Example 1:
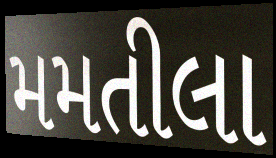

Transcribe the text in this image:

મમતીલા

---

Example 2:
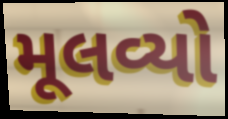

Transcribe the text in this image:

મૂલવ્યો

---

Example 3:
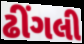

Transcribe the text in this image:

ઢીંગલી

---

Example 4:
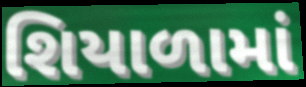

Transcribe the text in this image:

શિયાળામાં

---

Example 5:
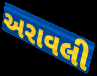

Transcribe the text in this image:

અરાવલી